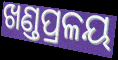
ଖଣ୍ଡପ୍ରଳୟ